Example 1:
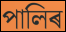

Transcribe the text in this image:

পালিৰ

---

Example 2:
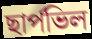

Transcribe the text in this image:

ছাৰ্পভিল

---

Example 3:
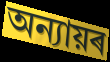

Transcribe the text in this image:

অন্যায়ৰ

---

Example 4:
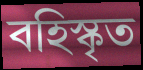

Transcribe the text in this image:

বহিস্কৃত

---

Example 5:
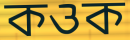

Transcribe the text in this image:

কওক